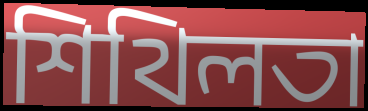
শিথিলতা